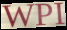
WPI